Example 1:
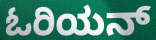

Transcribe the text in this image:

ಓರಿಯನ್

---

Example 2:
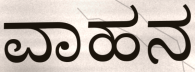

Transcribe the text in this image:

ವಾಹನ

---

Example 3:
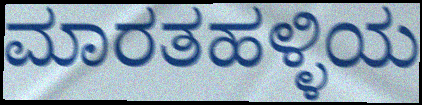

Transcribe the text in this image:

ಮಾರತಹಳ್ಳಿಯ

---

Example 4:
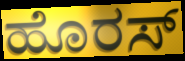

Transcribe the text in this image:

ಹೊರಸ್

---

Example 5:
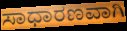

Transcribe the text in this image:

ಸಾಧಾರಣವಾಗಿ